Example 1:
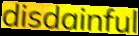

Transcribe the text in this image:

disdainful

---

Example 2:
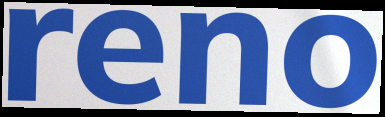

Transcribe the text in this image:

reno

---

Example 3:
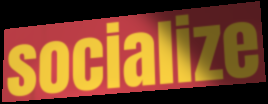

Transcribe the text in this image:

socialize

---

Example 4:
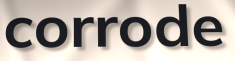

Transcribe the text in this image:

corrode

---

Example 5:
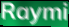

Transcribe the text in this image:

Raymi